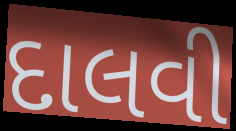
દાલવી